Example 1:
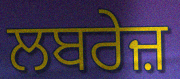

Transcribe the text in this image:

ਲਬਰੇਜ਼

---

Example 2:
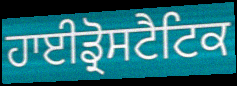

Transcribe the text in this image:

ਹਾਈਡ੍ਰੋਸਟੈਟਿਕ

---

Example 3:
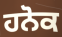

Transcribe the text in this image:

ਹਨੋਕ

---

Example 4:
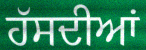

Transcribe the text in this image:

ਹੱਸਦੀਆਂ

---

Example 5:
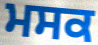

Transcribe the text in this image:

ਮਸਕ